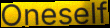
Oneself